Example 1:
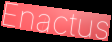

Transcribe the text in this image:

Enactus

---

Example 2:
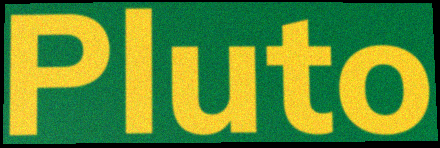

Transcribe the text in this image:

Pluto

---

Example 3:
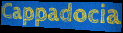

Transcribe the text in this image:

Cappadocia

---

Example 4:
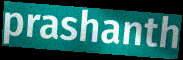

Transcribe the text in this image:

prashanth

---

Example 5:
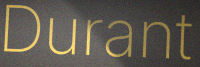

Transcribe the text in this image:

Durant